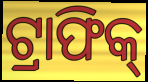
ଟ୍ରାଫିକ୍